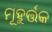
ମୂହୁର୍ତ୍ତକ